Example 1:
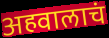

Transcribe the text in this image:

अहवालाचं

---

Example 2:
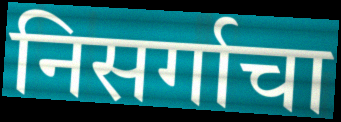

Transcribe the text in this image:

निसर्गाचा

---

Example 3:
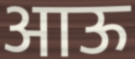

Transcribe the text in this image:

आऊ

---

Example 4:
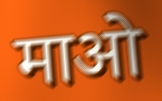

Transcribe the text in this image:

माओ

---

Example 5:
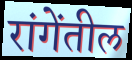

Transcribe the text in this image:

रांगेंतील